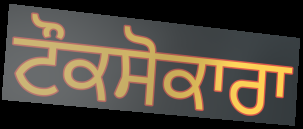
ਟੌਕਸੋਕਾਰਾ